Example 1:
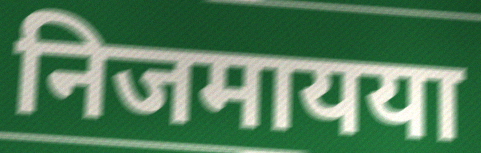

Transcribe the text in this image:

निजमायया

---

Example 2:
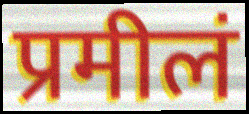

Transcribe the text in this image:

प्रमीलं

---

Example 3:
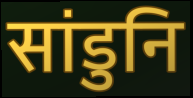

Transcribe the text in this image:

सांडुनि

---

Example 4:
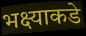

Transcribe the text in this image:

भक्ष्याकडे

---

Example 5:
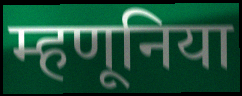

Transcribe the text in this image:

म्हणूनिया